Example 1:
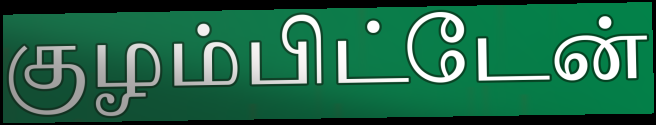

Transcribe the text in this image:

குழம்பிட்டேன்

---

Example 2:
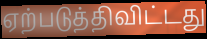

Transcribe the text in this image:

ஏற்படுத்திவிட்டது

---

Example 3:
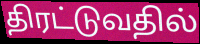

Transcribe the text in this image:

திரட்டுவதில்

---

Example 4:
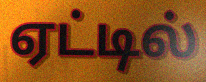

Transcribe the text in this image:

ஏட்டில்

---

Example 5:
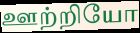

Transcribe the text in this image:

ஊற்றியோ